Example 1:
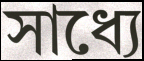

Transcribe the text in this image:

সাধ্যে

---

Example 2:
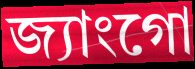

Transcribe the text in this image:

জ্যাংগো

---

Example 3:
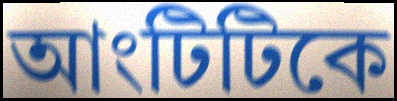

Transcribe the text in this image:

আংটিটিকে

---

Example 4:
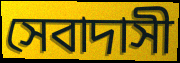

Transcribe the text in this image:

সেবাদাসী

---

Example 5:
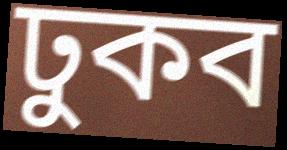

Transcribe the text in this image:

ঢুকব